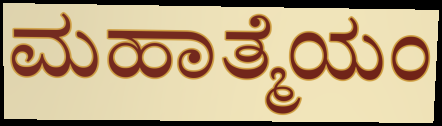
ಮಹಾತ್ಮೆಯಂ